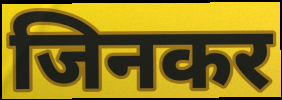
जिनकर